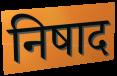
निषाद